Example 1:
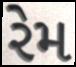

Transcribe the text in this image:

રેમ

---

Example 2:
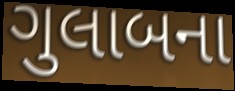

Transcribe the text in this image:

ગુલાબના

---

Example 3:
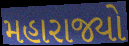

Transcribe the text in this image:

મહારાજ્યો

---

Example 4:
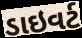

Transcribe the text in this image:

ડાઇવર્ટ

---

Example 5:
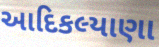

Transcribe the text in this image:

આદિકલ્યાણા